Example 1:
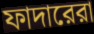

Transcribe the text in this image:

ফাদারেরা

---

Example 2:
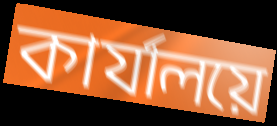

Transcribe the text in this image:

কার্যালয়ে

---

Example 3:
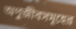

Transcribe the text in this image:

অণুজীবসমূহের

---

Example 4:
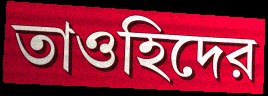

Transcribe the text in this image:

তাওহিদের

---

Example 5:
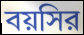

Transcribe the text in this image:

বয়সির